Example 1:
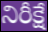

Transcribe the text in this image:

నిరీక్షే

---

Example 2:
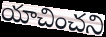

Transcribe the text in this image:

యాచించని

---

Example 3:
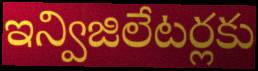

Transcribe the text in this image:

ఇన్విజిలేటర్లకు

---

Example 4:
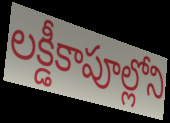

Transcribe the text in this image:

లక్డీకాపూల్లోని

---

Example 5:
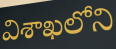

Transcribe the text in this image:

విశాఖలోని